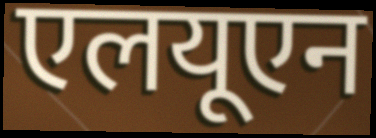
एलयूएन